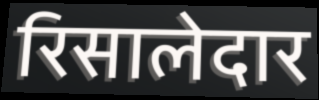
रिसालेदार